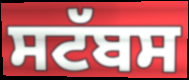
ਸਟੱਬਸ